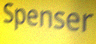
Spenser